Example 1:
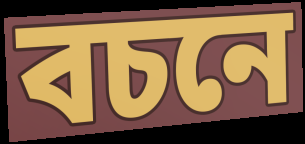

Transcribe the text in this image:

বচনে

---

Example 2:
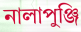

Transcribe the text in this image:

নালাপুঞ্জি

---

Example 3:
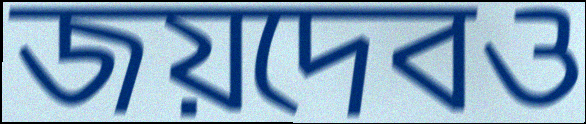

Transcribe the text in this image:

জয়দেবও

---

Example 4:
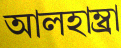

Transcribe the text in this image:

আলহাম্ব্রা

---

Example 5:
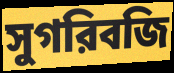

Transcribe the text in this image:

সুগরিবজি